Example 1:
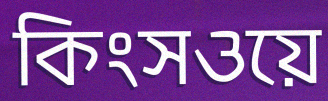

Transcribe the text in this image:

কিংসওয়ে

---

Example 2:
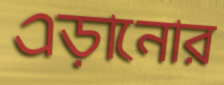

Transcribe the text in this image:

এড়ানোর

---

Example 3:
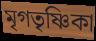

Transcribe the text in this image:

মৃগতৃষ্ণিকা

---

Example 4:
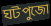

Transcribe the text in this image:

ঘটপুজো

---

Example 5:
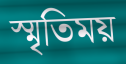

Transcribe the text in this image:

স্মৃতিময়